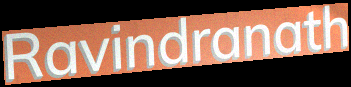
Ravindranath